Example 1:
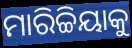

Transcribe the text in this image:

ମାରିଚ୍ଚିୟାକୁ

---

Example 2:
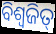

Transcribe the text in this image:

ବିଶ୍ୱଜିତ୍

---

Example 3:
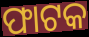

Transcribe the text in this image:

ଫାଟକ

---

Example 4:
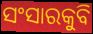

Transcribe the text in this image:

ସଂସାରକୁବି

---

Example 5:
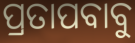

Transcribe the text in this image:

ପ୍ରତାପବାବୁ